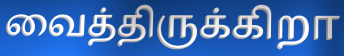
வைத்திருக்கிறா